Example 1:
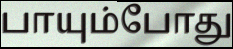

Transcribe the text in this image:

பாயும்போது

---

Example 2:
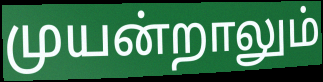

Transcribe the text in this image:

முயன்றாலும்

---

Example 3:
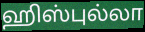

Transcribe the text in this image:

ஹிஸ்புல்லா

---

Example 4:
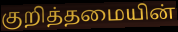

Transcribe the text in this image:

குறித்தமையின்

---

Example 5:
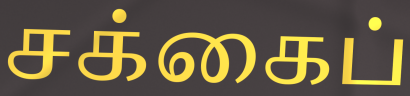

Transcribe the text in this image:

சக்கைப்